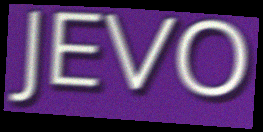
JEVO